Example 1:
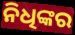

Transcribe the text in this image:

ନିଧିଙ୍କର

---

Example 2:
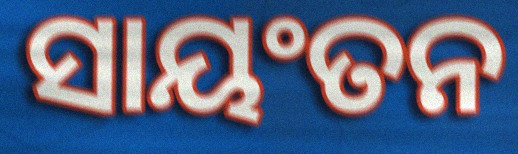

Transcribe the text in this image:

ସାୟଂତନ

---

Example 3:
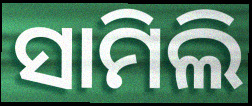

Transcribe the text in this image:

ସାମିଲି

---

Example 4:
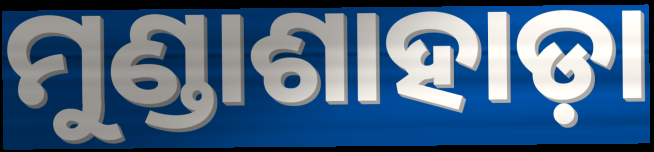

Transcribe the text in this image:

ମୁଣ୍ଡାଶାହାଡ଼ା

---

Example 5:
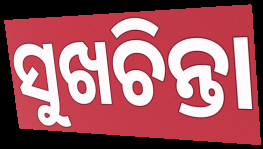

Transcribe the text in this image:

ସୁଖଚିନ୍ତା